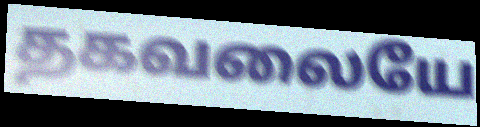
தகவலையே